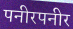
पनीरपनीर